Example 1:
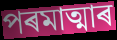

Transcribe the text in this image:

পৰমাত্মাৰ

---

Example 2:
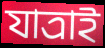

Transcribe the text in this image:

যাত্ৰাই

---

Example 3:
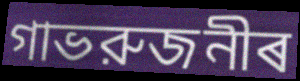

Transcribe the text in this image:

গাভৰুজনীৰ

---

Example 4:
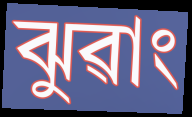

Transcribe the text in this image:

ঝুৱাং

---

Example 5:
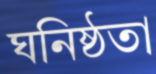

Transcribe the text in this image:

ঘনিষ্ঠতা